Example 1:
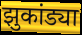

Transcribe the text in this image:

झुकांड्या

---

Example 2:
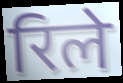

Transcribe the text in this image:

रिले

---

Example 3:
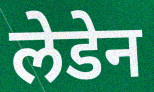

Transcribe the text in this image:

लेडेन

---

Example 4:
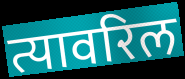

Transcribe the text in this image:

त्यावरिल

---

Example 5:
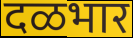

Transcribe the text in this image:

दळभार